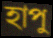
হাপু